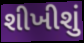
શીખીશું